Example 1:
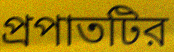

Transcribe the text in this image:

প্রপাতটির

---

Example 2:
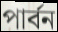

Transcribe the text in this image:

পার্বন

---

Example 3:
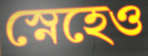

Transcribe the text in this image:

স্নেহেও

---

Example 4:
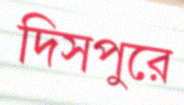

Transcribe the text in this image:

দিসপুরে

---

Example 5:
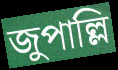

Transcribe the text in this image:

জুপাল্লি